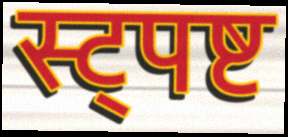
स्ट्पष्ट